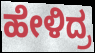
ಹೇಳಿದ್ರ